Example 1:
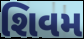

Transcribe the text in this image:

શિવમ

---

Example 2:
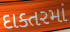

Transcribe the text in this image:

દાક્તરમાં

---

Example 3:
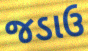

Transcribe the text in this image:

જડાઉ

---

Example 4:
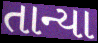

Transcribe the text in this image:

તાન્યા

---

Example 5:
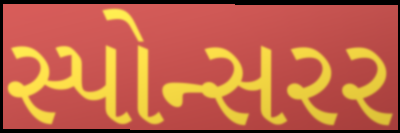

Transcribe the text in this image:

સ્પોન્સરર